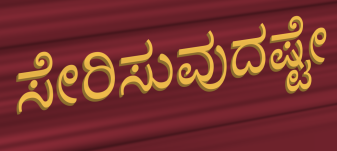
ಸೇರಿಸುವುದಷ್ಟೇ